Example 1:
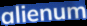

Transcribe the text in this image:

alienum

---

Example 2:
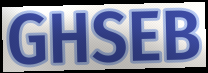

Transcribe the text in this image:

GHSEB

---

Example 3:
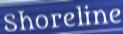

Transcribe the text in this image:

Shoreline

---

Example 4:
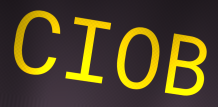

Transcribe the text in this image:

CIOB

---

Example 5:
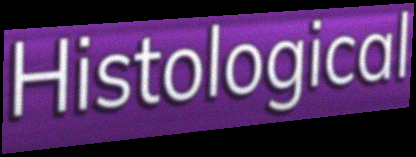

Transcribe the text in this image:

Histological